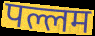
पल्लम